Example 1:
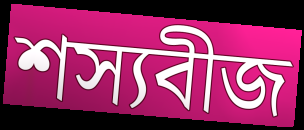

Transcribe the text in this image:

শস্যবীজ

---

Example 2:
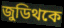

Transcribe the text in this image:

জুডিথকে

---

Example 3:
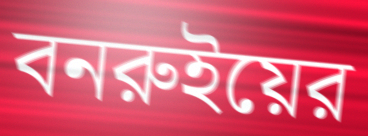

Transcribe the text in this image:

বনরুইয়ের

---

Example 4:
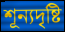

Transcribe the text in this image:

শূন্যদৃষ্টি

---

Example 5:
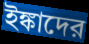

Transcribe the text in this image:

ইঙ্কাদের